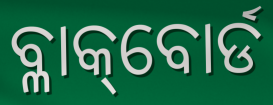
ବ୍ଳାକ୍‌ବୋର୍ଡ